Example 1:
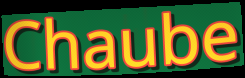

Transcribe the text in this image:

Chaube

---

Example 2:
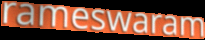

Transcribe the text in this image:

rameswaram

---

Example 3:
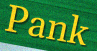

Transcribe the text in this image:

Pank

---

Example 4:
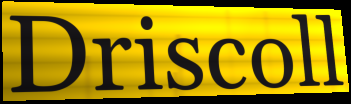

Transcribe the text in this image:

Driscoll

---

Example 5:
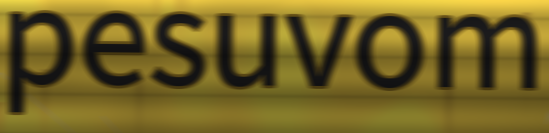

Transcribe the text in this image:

pesuvom